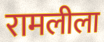
रामलीला